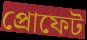
প্রোফেট